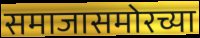
समाजासमोरच्या